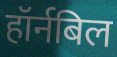
हॉर्नबिल